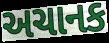
અચાનક